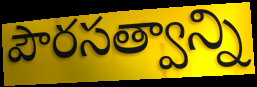
పౌరసత్వాన్ని